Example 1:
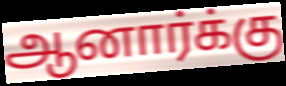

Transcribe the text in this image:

ஆனார்க்கு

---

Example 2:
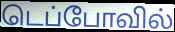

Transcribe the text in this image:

டெப்போவில்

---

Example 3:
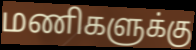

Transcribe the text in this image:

மணிகளுக்கு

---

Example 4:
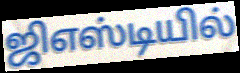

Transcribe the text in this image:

ஜிஎஸ்டியில்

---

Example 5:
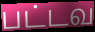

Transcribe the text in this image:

பட்டவ